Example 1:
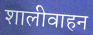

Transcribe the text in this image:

शालीवाहन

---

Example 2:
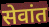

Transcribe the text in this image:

सेवांत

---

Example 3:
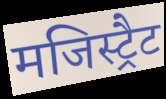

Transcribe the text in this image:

मजिस्ट्रैट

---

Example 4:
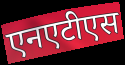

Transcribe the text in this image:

एनएटीएस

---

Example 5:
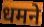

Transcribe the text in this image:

धमने